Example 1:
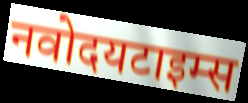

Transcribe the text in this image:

नवोदयटाइम्स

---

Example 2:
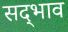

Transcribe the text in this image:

सद्‍भाव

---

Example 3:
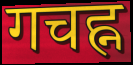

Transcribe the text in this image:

गचह्न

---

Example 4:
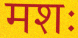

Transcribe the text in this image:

मशः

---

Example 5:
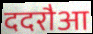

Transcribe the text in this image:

ददरौआ